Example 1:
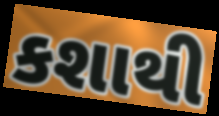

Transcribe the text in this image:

કશાથી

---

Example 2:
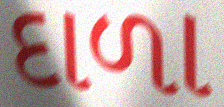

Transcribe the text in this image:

દાળા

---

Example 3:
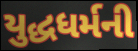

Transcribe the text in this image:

યુદ્ધધર્મની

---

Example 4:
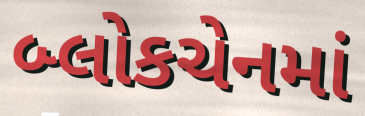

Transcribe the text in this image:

બ્લોકચેનમાં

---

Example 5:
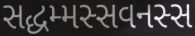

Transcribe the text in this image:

સદ્ધમ્મસ્સવનસ્સ